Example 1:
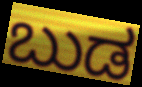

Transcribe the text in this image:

ಬುಡ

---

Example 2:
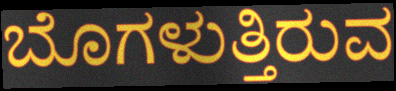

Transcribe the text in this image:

ಬೊಗಳುತ್ತಿರುವ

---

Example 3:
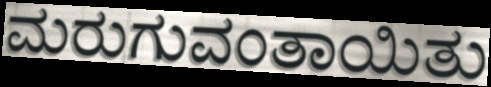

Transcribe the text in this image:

ಮರುಗುವಂತಾಯಿತು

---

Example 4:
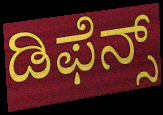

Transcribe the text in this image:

ಡಿಫೆನ್ಸ್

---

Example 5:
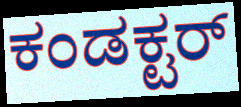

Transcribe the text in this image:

ಕಂಡಕ್ಟರ್